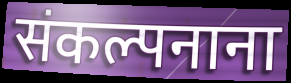
संकल्पनाना